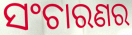
ସଂଚାରଣର